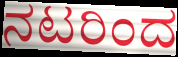
ನಟರಿಂದ